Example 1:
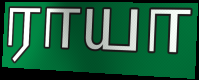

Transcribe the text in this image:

ராயா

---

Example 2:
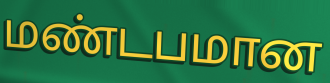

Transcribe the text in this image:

மண்டபமான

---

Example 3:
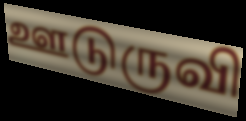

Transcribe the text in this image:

ஊடுருவி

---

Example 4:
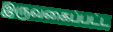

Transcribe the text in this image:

இருவகைப்பட்ட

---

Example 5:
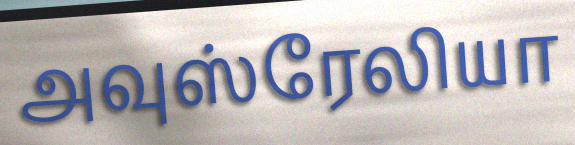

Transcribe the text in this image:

அவுஸ்ரேலியா